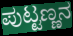
ಪುಟ್ಟಣ್ಣನ